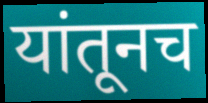
यांतूनच